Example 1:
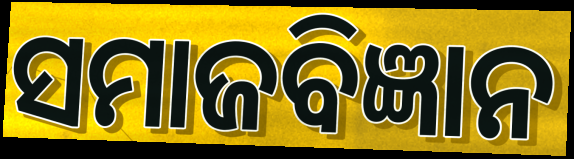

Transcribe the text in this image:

ସମାଜବିଜ୍ଞାନ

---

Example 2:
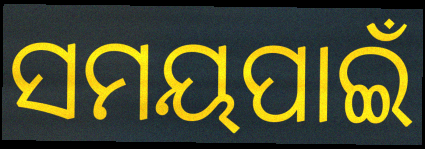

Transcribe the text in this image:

ସମୟପାଇଁ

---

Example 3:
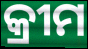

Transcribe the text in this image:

କ୍ରୀମ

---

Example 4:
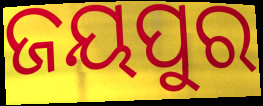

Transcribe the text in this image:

ଜୟପୁର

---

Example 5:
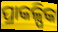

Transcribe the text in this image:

ପ୍ରାକଳ୍ପିକ